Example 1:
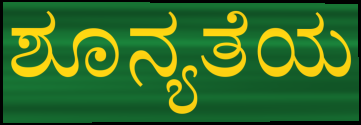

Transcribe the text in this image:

ಶೂನ್ಯತೆಯ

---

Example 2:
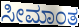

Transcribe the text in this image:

ಸೀಮಾಂತ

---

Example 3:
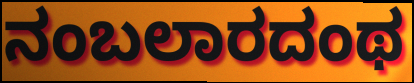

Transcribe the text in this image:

ನಂಬಲಾರದಂಥ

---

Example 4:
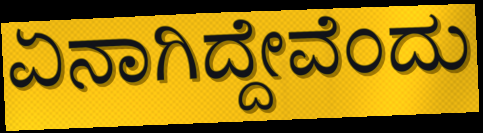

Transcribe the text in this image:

ಏನಾಗಿದ್ದೇವೆಂದು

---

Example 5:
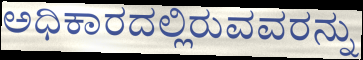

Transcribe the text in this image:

ಅಧಿಕಾರದಲ್ಲಿರುವವರನ್ನು